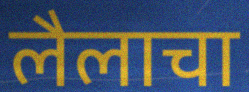
लैलाचा